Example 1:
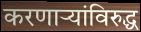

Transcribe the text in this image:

करणाऱ्यांविरुद्ध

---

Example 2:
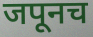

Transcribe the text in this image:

जपूनच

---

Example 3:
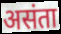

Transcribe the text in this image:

असंता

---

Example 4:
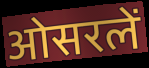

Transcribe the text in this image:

ओसरलें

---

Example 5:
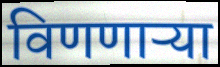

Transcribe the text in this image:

विणणाऱ्या